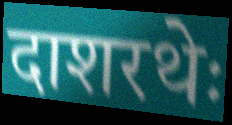
दाशरथेः